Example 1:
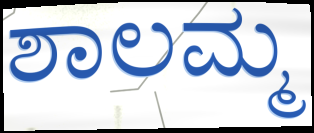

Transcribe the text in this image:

ಶಾಲಮ್ಮ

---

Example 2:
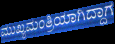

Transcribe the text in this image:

ಮುಖ್ಯಮಂತ್ರಿಯಾಗಿದ್ದಾಗ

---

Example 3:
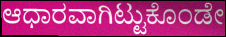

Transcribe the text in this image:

ಆಧಾರವಾಗಿಟ್ಟುಕೊಂಡೇ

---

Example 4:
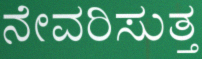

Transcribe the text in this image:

ನೇವರಿಸುತ್ತ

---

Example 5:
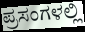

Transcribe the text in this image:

ಪ್ರಸಂಗಳಲ್ಲಿ